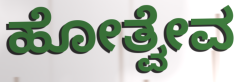
ಹೋತ್ವೇವ